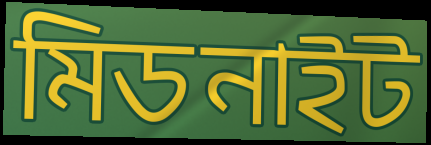
মিডনাইট